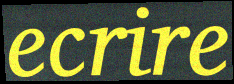
ecrire